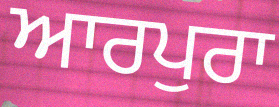
ਆਰਪੁਰਾ